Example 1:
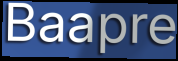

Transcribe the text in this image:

Baapre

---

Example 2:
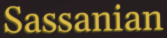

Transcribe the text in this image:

Sassanian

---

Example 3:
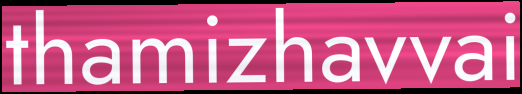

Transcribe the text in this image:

thamizhavvai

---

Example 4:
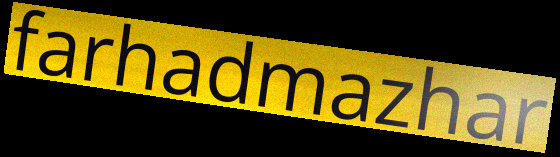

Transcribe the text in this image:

farhadmazhar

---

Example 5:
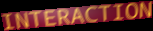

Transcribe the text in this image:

INTERACTION